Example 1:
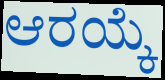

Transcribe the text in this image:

ಆರಯ್ಕೆ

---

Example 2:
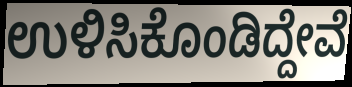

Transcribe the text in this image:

ಉಳಿಸಿಕೊಂಡಿದ್ದೇವೆ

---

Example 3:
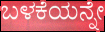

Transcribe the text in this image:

ಬಳಕೆಯನ್ನೇ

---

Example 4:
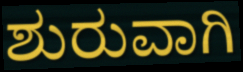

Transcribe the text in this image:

ಶುರುವಾಗಿ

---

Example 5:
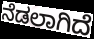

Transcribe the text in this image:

ನೆಡಲಾಗಿದೆ